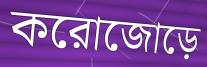
করোজোড়ে